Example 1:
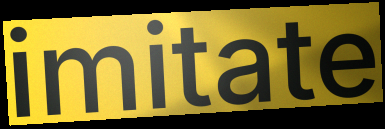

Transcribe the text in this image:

imitate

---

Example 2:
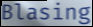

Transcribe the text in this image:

Blasing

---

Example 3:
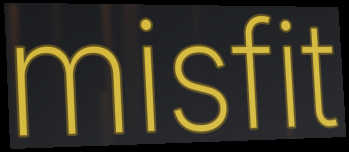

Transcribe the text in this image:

misfit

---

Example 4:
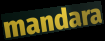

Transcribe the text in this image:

mandara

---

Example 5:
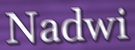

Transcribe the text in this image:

Nadwi